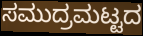
ಸಮುದ್ರಮಟ್ಟದ